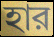
হার